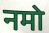
नमो